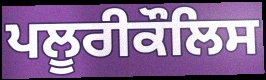
ਪਲੂਰੀਕੌਲਿਸ